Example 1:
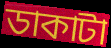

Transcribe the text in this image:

ডাকাটা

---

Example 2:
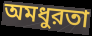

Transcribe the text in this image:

অমধুরতা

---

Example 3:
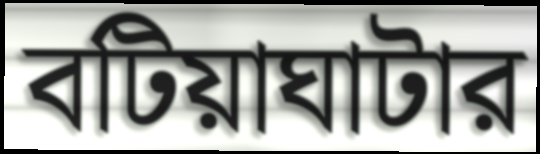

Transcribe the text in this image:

বটিয়াঘাটার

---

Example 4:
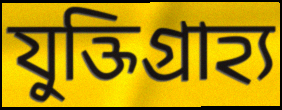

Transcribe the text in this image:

যুক্তিগ্রাহ্য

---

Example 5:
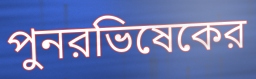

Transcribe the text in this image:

পুনরভিষেকের